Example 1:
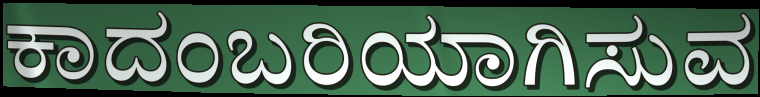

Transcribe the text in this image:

ಕಾದಂಬರಿಯಾಗಿಸುವ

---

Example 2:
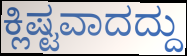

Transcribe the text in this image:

ಕ್ಲಿಷ್ಟವಾದದ್ದು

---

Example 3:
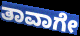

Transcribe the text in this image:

ತಾವಾಗೇ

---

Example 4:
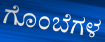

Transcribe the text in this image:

ಗೊಂಬೆಗಳ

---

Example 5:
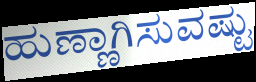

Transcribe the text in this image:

ಹುಣ್ಣಾಗಿಸುವಷ್ಟು